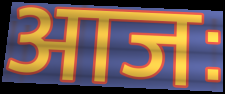
आजः